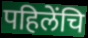
पहिलेंचि